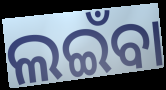
ଲଇଁବା